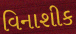
વિનાશીક